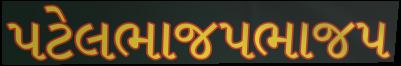
પટેલભાજપભાજપ